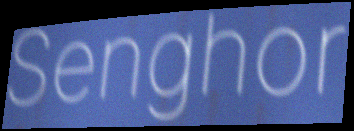
Senghor